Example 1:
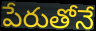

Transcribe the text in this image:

పేరుతోనే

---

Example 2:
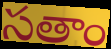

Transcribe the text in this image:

సతాం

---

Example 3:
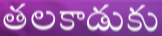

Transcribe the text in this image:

తలకాడుకు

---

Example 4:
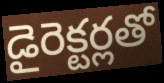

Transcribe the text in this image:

డైరెక్టర్లతో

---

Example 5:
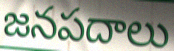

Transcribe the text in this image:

జనపదాలు